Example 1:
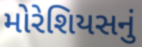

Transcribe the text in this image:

મોરેશિયસનું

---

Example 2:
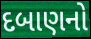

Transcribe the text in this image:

દબાણનો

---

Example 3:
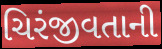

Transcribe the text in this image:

ચિરંજીવતાની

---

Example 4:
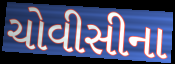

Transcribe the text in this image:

ચોવીસીના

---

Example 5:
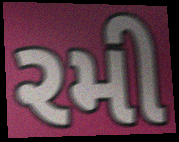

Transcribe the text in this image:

રમી